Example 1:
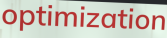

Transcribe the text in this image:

optimization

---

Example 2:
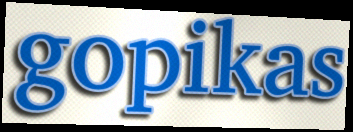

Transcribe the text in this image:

gopikas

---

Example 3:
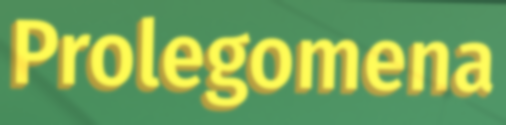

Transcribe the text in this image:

Prolegomena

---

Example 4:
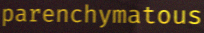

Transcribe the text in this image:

parenchymatous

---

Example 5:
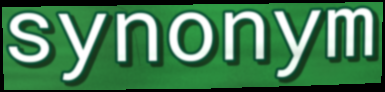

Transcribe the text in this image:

synonym